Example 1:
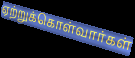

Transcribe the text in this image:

ஏற்றுக்கொள்வார்கள்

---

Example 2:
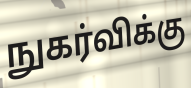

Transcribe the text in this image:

நுகர்விக்கு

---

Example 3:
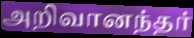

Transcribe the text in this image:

அறிவானந்தர்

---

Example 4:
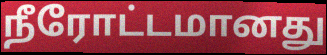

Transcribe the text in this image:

நீரோட்டமானது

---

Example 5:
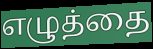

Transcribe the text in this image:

எழுத்தை